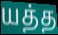
யத்த